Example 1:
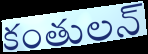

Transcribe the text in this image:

కంతులన్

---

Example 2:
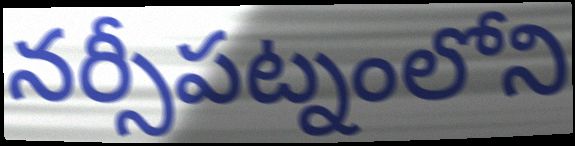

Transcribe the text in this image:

నర్సీపట్నంలోని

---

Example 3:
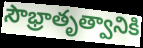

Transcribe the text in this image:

సౌభ్రాతృత్వానికి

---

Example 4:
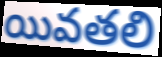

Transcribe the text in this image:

యివతలి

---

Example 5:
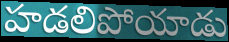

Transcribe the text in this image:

హడలిపోయాడు